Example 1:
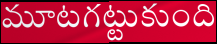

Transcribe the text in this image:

మూటగట్టుకుంది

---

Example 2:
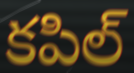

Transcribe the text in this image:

కపిల్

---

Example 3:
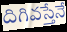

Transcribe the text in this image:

దిగివస్తేనే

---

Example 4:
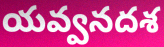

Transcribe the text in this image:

యవ్వనదశ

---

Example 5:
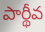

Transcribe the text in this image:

పార్థీవ